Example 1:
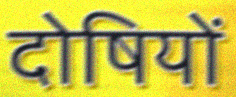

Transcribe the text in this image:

दोषियों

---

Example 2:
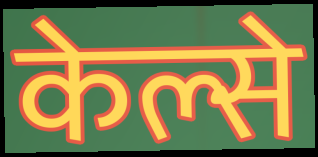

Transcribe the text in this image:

केल्से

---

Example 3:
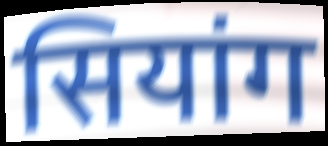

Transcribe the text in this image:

सियांग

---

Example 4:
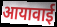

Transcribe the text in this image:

आयावाई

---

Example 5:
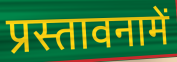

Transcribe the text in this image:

प्रस्तावनामें